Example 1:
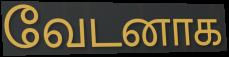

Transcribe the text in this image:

வேடனாக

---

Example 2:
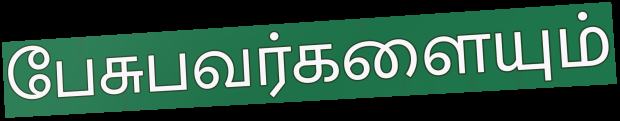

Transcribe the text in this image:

பேசுபவர்களையும்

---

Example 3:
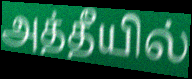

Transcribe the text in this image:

அத்தீயில்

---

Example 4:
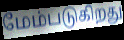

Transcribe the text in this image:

மேம்படுகிறது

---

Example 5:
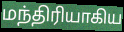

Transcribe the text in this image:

மந்திரியாகிய